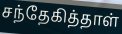
சந்தேகித்தாள்